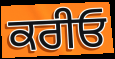
ਕਰੀਓ